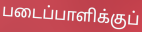
படைப்பாளிக்குப்